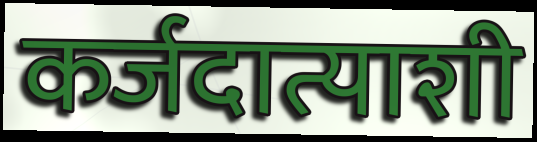
कर्जदात्याशी